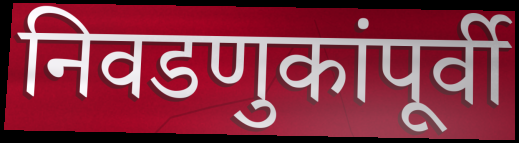
निवडणुकांपूर्वी